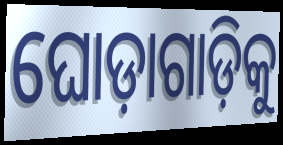
ଘୋଡ଼ାଗାଡ଼ିକୁ